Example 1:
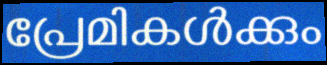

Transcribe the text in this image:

പ്രേമികൾക്കും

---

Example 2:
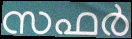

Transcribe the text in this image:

സഫർ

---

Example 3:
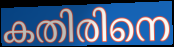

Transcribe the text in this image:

കതിരിനെ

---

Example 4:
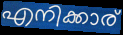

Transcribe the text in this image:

എനിക്കാര്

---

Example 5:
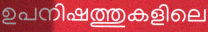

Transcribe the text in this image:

ഉപനിഷത്തുകളിലെ